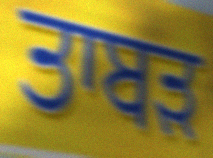
ਤਾਬੜ